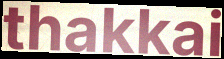
thakkai